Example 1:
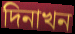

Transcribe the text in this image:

দিনাখন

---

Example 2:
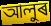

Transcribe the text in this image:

আলুৰ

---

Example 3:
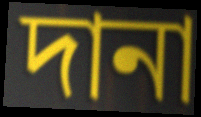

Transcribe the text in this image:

দানা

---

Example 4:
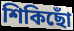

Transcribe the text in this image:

শিকিছোঁ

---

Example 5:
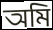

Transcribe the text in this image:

অমি